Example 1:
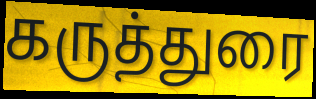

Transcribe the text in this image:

கருத்துரை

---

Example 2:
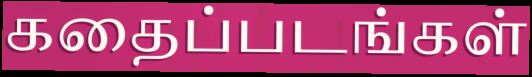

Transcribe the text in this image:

கதைப்படங்கள்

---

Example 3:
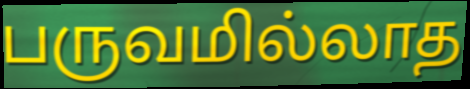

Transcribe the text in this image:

பருவமில்லாத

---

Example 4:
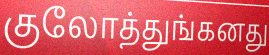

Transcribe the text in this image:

குலோத்துங்கனது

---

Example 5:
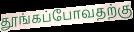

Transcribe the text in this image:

தூங்கப்போவதற்கு